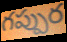
గప్పుర